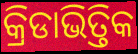
କ୍ରିଡାଭିତ୍ତିକ